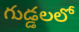
గుడ్డలలో